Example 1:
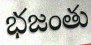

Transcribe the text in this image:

భజంతు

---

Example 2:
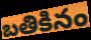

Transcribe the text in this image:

బతికినం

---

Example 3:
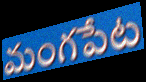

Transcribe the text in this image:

మంగపేట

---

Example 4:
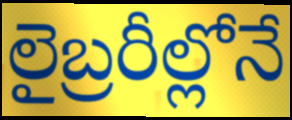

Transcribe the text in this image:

లైబ్రరీల్లోనే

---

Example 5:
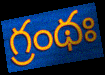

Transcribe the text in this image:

గ్రంథః